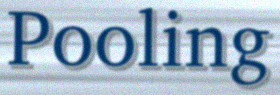
Pooling